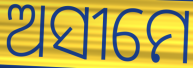
ଅସୀମେ